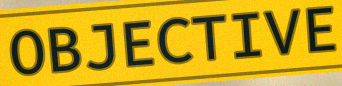
OBJECTIVE